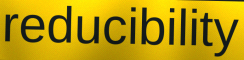
reducibility